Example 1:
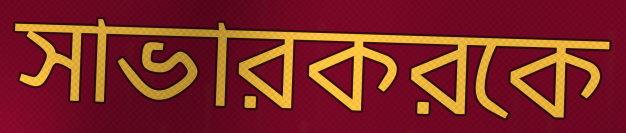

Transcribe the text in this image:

সাভারকরকে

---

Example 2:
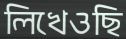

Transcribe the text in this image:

লিখেওছি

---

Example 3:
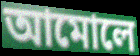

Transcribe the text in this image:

আমোলে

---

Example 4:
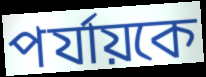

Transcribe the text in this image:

পর্যায়কে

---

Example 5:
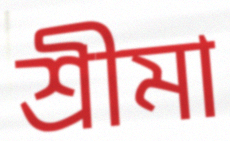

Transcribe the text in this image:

শ্রীমা